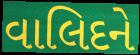
વાલિદને